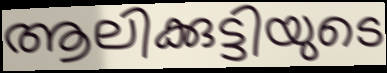
ആലിക്കുട്ടിയുടെ